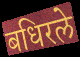
बधिरले